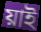
য়াই